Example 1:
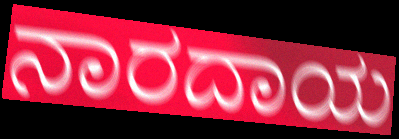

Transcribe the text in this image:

ನಾರದಾಯ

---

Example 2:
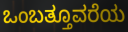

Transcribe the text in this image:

ಒಂಬತ್ತೂವರೆಯ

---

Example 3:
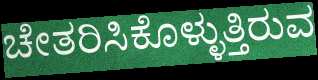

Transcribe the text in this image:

ಚೇತರಿಸಿಕೊಳ್ಳುತ್ತಿರುವ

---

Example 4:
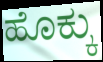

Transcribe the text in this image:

ಹೊಕ್ಕು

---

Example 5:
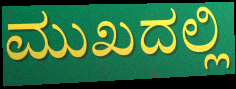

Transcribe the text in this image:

ಮುಖದಲ್ಲಿ